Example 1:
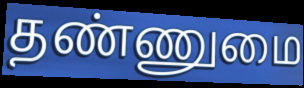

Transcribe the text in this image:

தண்ணுமை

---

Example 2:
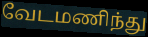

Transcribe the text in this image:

வேடமணிந்து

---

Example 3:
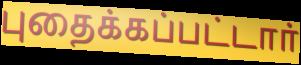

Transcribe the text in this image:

புதைக்கப்பட்டார்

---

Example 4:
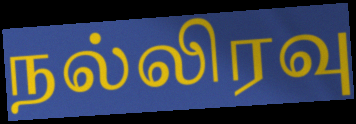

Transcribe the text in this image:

நல்லிரவு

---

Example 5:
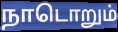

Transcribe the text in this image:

நாடொறும்